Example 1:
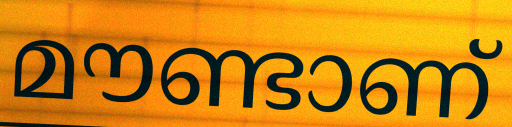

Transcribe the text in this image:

മൗണ്ടാണ്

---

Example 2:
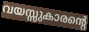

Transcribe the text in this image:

വയസ്സുകാരന്റെ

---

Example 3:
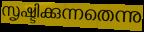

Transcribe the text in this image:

സൃഷ്ടിക്കുന്നതെന്നു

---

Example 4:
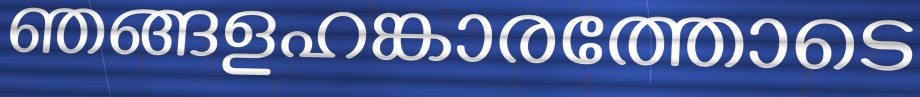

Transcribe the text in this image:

ഞങ്ങളഹങ്കാരത്തോടെ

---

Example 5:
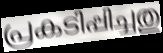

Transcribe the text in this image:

പ്രകടിപ്പിച്ചതു